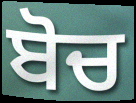
ਬੋਚ